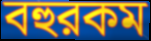
বহুরকম